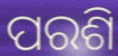
ପରଶି